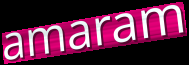
amaram